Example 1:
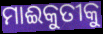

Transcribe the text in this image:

ମାଈକୁତୀକୁ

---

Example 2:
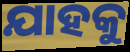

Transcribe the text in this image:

ଯାହକୁ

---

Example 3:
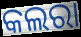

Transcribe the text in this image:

କଲରା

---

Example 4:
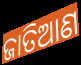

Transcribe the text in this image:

ଜାତିଆଣ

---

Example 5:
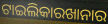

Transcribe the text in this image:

ଟାଇଲିକାରଖାନାର